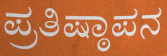
ಪ್ರತಿಷ್ಠಾಪನ